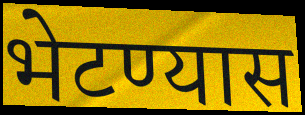
भेटण्यास